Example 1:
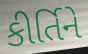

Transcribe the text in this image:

કીર્તિને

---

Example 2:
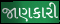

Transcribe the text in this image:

જાણકારી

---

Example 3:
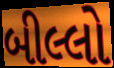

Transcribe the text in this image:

બીલ્લો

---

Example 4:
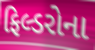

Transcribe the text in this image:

ફિલ્ડરોના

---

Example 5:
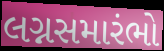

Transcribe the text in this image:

લગ્નસમારંભો